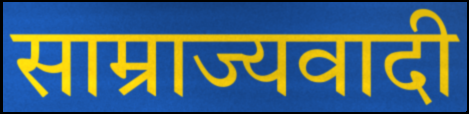
साम्राज्यवादी